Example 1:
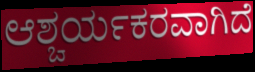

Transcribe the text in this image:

ಆಶ್ಚರ್ಯಕರವಾಗಿದೆ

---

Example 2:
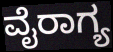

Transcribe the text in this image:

ವೈರಾಗ್ಯ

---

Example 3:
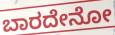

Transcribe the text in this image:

ಬಾರದೇನೋ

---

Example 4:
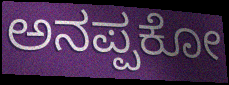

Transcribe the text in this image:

ಅನಪ್ಪಕೋ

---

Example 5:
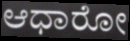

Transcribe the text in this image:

ಆಧಾರೋ